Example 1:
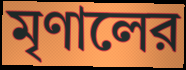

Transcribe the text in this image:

মৃণালের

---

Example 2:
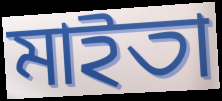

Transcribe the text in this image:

মাইতা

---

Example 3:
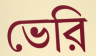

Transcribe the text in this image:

ভেরি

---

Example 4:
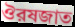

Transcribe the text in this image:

ঔরষজাত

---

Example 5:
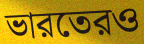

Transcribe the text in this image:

ভারতেরও